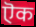
ऎक